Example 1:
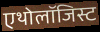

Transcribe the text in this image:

एथोलॉजिस्ट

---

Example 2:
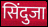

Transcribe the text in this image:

सिंदुजा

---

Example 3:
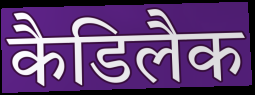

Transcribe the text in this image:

कैडिलैक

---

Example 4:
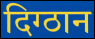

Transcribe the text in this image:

दिग्ठान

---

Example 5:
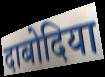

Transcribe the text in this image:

दाबोदिया